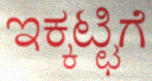
ಇಕ್ಕಟ್ಟಿಗೆ